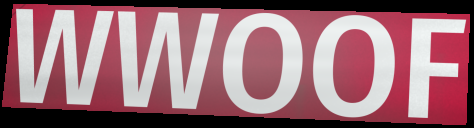
WWOOF